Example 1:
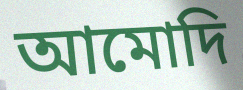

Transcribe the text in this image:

আমোদি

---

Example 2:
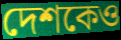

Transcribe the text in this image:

দেশকেও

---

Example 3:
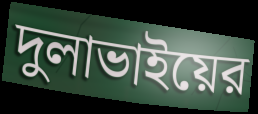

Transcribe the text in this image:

দুলাভাইয়ের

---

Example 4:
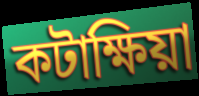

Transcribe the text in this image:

কটাক্ষিয়া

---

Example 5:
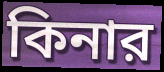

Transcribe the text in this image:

কিনার